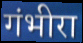
गंभीरा